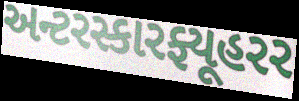
અન્ટરસ્કારફ્યૂહરર